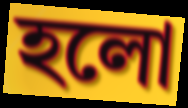
হলো